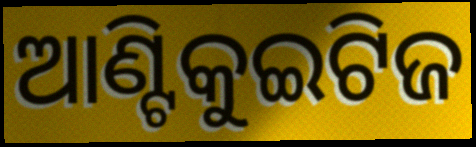
ଆଣ୍ଟିକୁଇଟିଜ